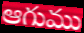
ఆగుము